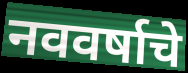
नववर्षाचे